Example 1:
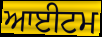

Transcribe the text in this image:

ਆਈਟਮ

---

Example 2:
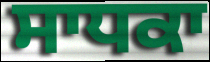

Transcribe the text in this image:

ਸਾਧਕਾ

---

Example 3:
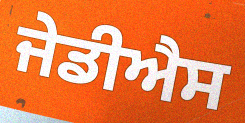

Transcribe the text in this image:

ਜੇਡੀਐਸ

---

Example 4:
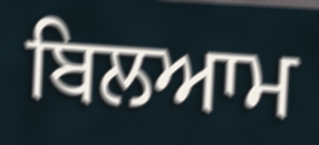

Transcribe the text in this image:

ਬਿਲਆਮ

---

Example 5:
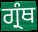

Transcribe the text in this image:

ਗ੍ਰੰਥ